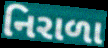
નિરાળા